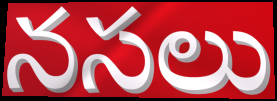
నసలు